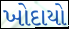
ખોદાયો